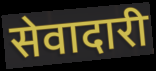
सेवादारी